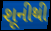
શૂનીથી